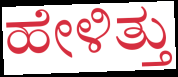
ಹೇಳಿತ್ತು